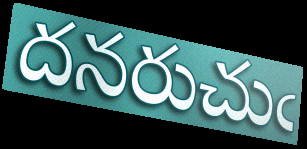
దనరుచుఁ